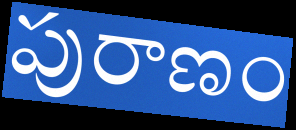
పురాణం